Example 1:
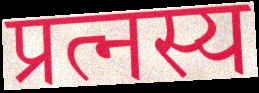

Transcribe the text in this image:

प्रत्नस्य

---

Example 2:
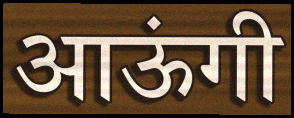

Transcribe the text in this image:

आऊंगी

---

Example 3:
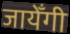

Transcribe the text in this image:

जायेँगी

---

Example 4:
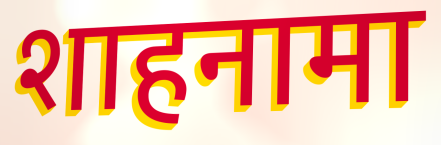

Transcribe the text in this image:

शाहनामा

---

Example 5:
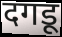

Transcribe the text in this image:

दगडू